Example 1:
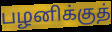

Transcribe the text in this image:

பழனிக்குத்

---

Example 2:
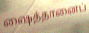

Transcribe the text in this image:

ஷைத்தானைப்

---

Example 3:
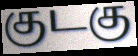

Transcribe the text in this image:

குடகு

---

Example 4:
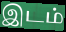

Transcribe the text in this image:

இடம்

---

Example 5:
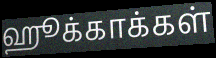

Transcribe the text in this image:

ஹூக்காக்கள்